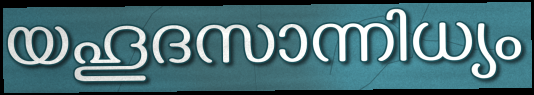
യഹൂദസാന്നിധ്യം